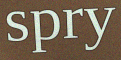
spry